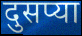
दुसप्या